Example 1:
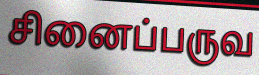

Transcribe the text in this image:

சினைப்பருவ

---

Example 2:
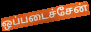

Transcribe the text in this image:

ஒப்படைச்சேன்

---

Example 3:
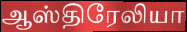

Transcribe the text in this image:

ஆஸ்திரேலியா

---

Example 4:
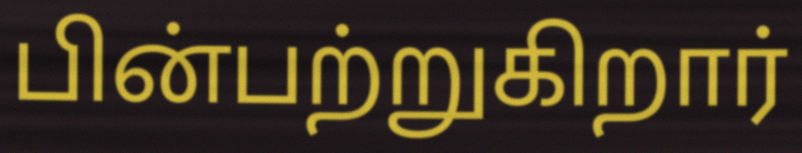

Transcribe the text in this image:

பின்பற்றுகிறார்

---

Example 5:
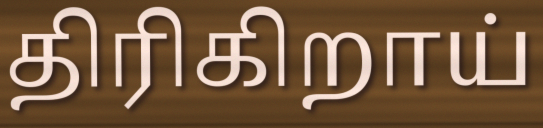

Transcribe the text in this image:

திரிகிறாய்